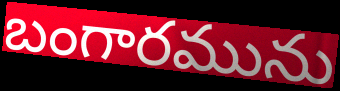
బంగారమును